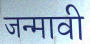
जन्मावी